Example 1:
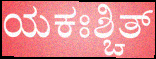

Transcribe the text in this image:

ಯಕಃಶ್ಚಿತ್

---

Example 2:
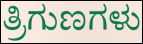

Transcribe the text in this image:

ತ್ರಿಗುಣಗಳು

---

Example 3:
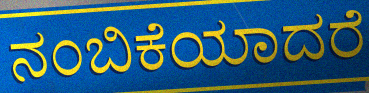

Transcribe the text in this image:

ನಂಬಿಕೆಯಾದರೆ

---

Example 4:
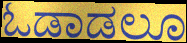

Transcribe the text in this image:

ಓಡಾಡಲೂ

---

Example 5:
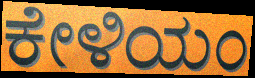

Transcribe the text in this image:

ಕೇಳಿಯಂ